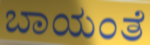
ಬಾಯಂತೆ